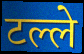
टल्ले